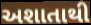
અશાતાથી